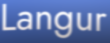
Langur